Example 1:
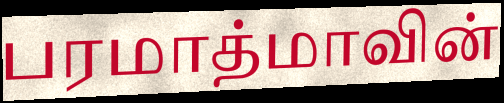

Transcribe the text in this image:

பரமாத்மாவின்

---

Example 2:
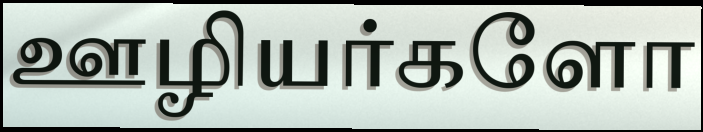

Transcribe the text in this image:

ஊழியர்களோ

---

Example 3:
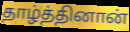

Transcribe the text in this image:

தாழ்த்தினான்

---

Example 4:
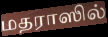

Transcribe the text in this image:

மதராஸில்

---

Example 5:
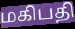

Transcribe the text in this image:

மகிபதி